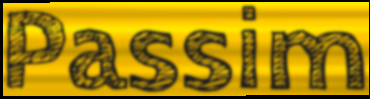
Passim